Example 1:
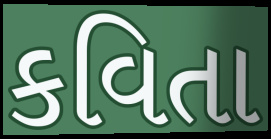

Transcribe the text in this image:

કવિતા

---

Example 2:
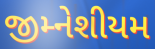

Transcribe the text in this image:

જીમ્નેશીયમ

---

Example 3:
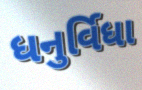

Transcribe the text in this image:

ધનુર્વિધા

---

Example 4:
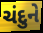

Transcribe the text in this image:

ચંદુને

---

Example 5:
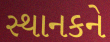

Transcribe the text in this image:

સ્થાનકને